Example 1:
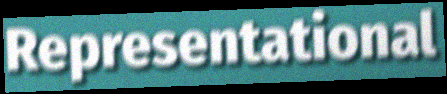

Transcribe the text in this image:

Representational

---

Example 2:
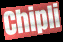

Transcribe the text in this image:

Chipli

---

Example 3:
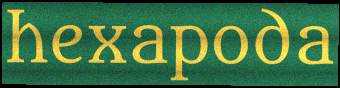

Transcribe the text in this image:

hexapoda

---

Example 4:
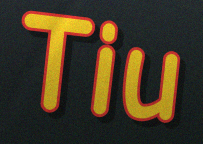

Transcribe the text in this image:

Tiu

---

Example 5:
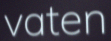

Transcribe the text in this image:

vaten